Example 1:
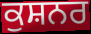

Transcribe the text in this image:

ਕੁਸ਼ਨਰ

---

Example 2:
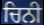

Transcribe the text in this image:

ਚਿਨੀ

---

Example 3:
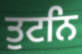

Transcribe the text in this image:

ਤੁਟਨਿ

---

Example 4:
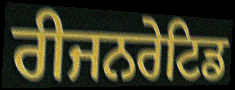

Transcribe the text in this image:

ਰੀਜਨਰੇਟਿਡ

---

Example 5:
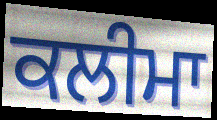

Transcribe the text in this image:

ਕਲੀਮਾ